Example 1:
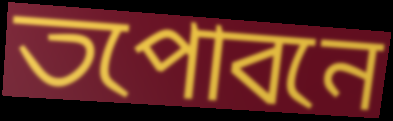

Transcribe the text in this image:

তপোবনে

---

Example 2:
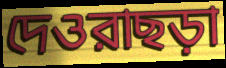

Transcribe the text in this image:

দেওরাছড়া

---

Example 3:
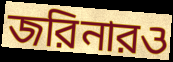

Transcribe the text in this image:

জরিনারও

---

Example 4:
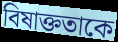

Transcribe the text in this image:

বিষাক্ততাকে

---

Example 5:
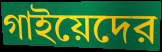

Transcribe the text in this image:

গাইয়েদের